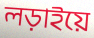
লড়াইয়ে